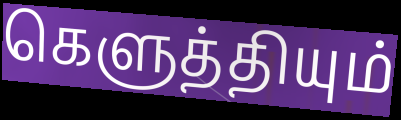
கெளுத்தியும்